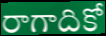
రాగాదికో